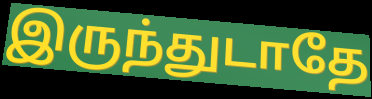
இருந்துடாதே